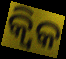
କ୍ୱିକ